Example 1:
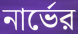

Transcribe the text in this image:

নার্ভের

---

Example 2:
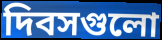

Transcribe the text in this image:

দিবসগুলো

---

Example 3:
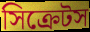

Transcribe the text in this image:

সিক্রেটস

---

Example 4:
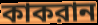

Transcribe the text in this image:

কাকরান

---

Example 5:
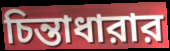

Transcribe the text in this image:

চিন্তাধারার